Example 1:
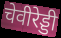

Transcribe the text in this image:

चेवीरेड्डी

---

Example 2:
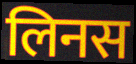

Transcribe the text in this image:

लिनस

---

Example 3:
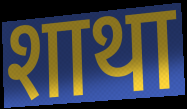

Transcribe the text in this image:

शाथा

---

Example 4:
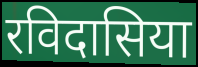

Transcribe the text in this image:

रविदासिया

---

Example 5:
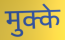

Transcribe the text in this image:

मुक्के